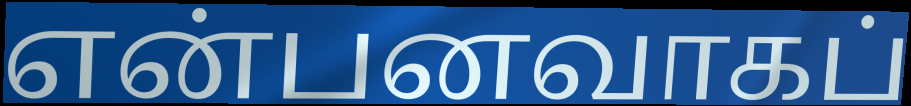
என்பனவாகப்